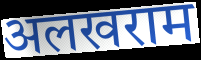
अलखराम